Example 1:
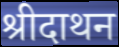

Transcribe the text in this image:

श्रीदाथन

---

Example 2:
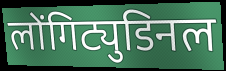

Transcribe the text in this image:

लोंगिट्युडिनल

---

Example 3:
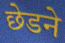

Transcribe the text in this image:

छेडने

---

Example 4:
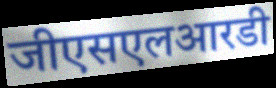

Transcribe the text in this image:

जीएसएलआरडी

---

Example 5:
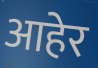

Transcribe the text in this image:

आहेर